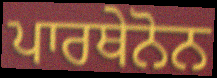
ਪਾਰਥੇਨੋਨ